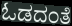
ಓಡದಂತೆ